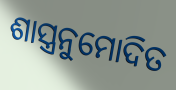
ଶାସ୍ତ୍ରନୁମୋଦିତ